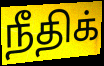
நீதிக்